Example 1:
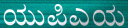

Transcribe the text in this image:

ಯುಪಿಎಯ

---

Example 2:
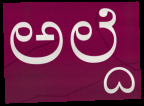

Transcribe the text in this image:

ಅಲ್ದೆ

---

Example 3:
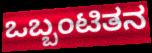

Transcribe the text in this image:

ಒಬ್ಬಂಟಿತನ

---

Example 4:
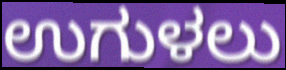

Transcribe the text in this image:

ಉಗುಳಲು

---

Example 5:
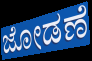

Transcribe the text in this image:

ಜೋಡಣೆ